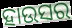
ହାଉସର